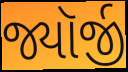
જ્યૉર્જી